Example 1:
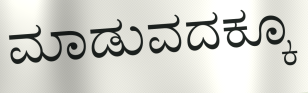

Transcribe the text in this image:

ಮಾಡುವದಕ್ಕೂ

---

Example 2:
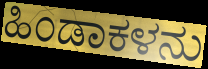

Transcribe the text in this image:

ಹಿಂಡಾಕಳನು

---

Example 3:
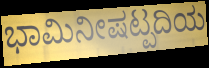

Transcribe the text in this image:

ಭಾಮಿನೀಷಟ್ಪದಿಯ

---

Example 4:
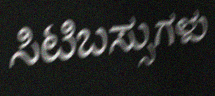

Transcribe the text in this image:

ಸಿಟಿಬಸ್ಸುಗಳು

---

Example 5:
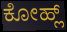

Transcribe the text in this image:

ಕೋಹ್ಲ್